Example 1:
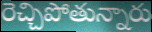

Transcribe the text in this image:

రెచ్చిపోతున్నారు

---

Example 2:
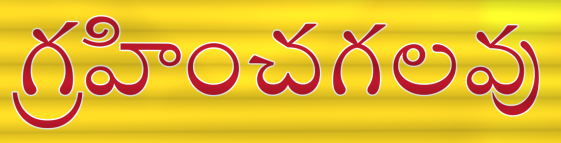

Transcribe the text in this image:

గ్రహించగలవు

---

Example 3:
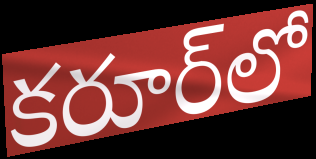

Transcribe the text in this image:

కరూర్‌లో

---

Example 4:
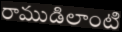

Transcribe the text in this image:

రాముడిలాంటి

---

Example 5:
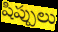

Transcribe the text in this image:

షిప్పులు